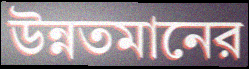
উন্নতমানের